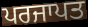
ਪਰਜਾਪਤ